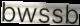
bwssb